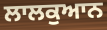
ਲਾਲਕੁਆਨ